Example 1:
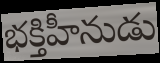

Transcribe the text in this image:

భక్తిహీనుడు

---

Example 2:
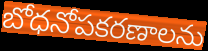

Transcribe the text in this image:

బోధనోపకరణాలను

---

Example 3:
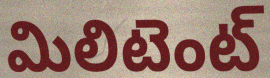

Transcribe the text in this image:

మిలిటెంట్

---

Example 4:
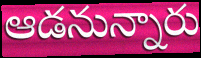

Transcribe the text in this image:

ఆడనున్నారు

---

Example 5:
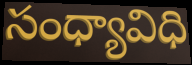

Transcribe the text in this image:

సంధ్యావిధి